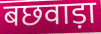
बछवाड़ा